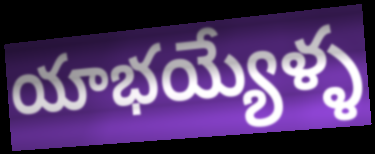
యాభయ్యేళ్ళ